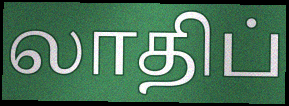
லாதிப்